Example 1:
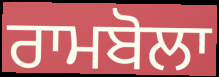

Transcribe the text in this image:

ਰਾਮਬੋਲਾ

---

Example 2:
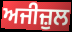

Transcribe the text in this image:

ਅਜੀਜ਼ੁਲ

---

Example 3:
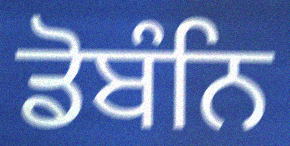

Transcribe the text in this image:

ਡੋਬੰਨਿ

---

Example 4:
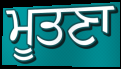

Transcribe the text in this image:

ਮੂਤਣਾ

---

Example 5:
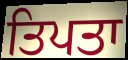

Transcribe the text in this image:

ਤਿਪਤਾ